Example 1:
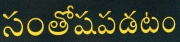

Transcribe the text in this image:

సంతోషపడటం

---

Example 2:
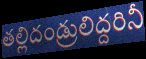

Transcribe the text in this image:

తల్లిదండ్రులిద్దరినీ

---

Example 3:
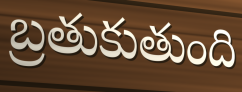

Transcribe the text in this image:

బ్రతుకుతుంది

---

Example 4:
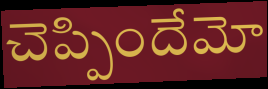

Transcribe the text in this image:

చెప్పిందేమో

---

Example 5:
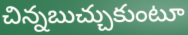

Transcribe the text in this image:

చిన్నబుచ్చుకుంటూ